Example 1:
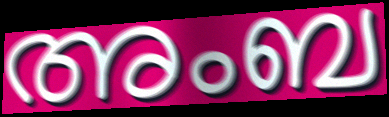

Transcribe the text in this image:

അംബ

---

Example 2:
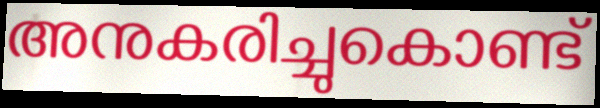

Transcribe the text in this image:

അനുകരിച്ചുകൊണ്ട്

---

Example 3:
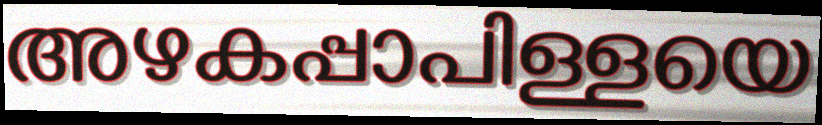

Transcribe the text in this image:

അഴകപ്പാപിള്ളയെ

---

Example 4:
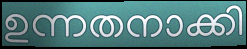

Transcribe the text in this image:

ഉന്നതനാക്കി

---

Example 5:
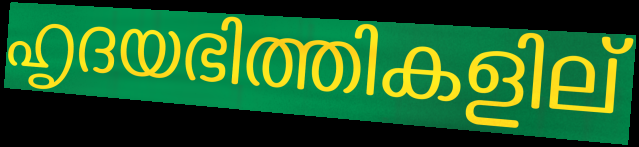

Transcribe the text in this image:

ഹൃദയഭിത്തികളില്